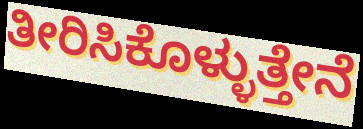
ತೀರಿಸಿಕೊಳ್ಳುತ್ತೇನೆ